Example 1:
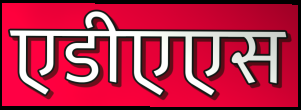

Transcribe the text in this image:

एडीएएस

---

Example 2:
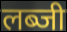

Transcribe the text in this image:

लब्जी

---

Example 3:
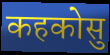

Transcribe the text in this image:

कहकोसु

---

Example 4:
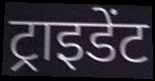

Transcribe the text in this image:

ट्राइडेंट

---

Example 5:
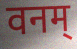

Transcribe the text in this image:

वनम्